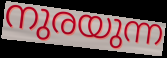
നുരയുന്ന